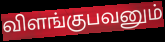
விளங்குபவனும்